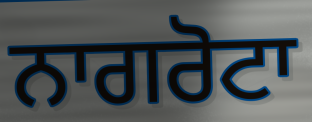
ਨਾਗਰੋਟਾ